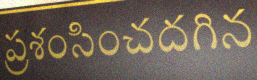
ప్రశంసించదగిన